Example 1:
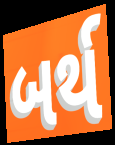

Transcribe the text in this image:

બર્થ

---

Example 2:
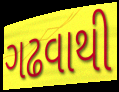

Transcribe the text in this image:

ગઢવાથી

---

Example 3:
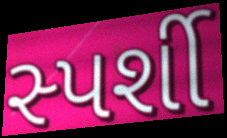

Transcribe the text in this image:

સ્પર્શી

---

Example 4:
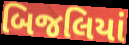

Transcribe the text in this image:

બિજલિયાં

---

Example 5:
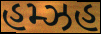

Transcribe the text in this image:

હમ્ઝહ